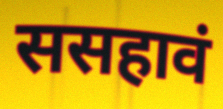
ससहावं